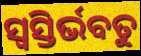
ସ୍ୱସ୍ତିର୍ଭବତୁ